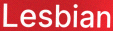
Lesbian